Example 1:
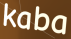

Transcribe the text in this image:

kaba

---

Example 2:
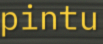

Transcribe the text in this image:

pintu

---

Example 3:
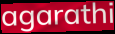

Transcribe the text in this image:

agarathi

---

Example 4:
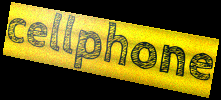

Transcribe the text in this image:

cellphone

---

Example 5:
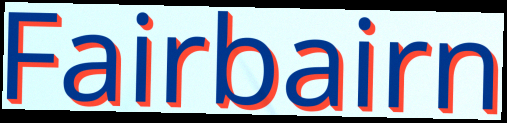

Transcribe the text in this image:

Fairbairn